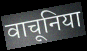
वाचूनिया